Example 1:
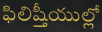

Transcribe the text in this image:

ఫిలిష్తీయుల్లో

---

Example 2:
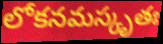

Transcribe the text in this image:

లోకనమస్కృతః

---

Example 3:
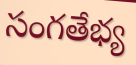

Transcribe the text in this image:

సంగతేభ్య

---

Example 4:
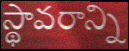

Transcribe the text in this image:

స్థావరాన్ని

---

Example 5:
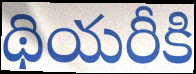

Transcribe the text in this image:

థియరీకి